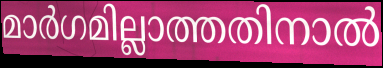
മാർഗമില്ലാത്തതിനാൽ